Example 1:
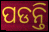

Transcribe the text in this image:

ପଡନ୍ତି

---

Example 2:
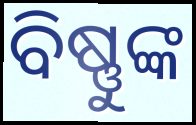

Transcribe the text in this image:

ବିଷ୍ଣୁଙ୍କ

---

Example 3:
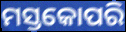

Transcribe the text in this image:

ମସ୍ତକୋପରି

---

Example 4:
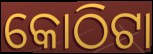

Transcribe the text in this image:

କୋଠିଟା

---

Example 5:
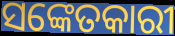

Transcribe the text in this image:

ସଙ୍କେତକାରୀ